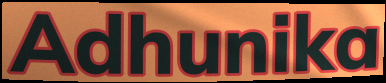
Adhunika